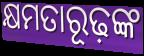
କ୍ଷମତାରୂଢ଼ଙ୍କ